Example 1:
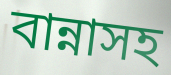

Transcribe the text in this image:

বান্নাসহ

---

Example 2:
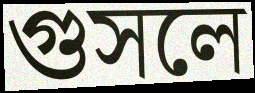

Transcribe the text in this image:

গুসলে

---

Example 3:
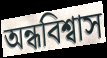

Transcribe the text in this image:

অন্ধবিশ্বাস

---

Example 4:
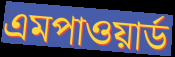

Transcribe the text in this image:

এমপাওয়ার্ড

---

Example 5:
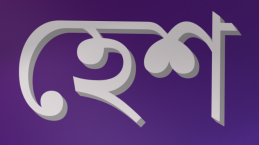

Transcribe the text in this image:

হেশ